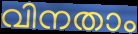
വിനതാം